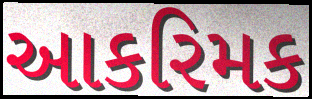
આકરિમક